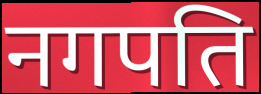
नगपति